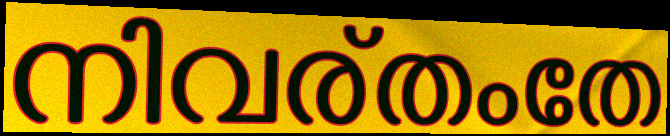
നിവര്തംതേ